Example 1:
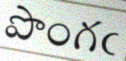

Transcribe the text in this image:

పొంగఁ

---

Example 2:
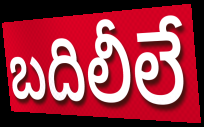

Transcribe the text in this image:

బదిలీలే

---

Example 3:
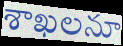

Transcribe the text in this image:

శాఖలనూ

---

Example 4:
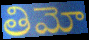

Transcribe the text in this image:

తిమో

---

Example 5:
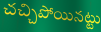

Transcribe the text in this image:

చచ్చిపోయినట్టు